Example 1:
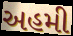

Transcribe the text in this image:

અહમી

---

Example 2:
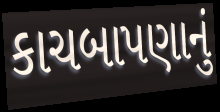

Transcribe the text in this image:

કાચબાપણાનું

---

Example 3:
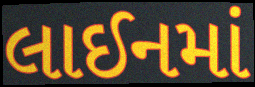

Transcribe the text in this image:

લાઈનમાં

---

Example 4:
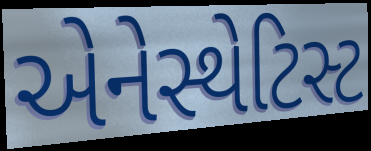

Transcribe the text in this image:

એનેસ્થેટિસ્ટ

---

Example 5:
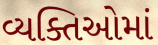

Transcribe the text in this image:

વ્યક્તિઓમાં